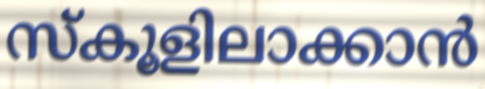
സ്കൂളിലാക്കാൻ